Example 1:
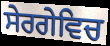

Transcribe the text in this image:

ਸੇਰਗੇਵਿਚ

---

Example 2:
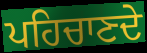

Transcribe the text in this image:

ਪਹਿਚਾਣਦੇ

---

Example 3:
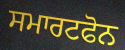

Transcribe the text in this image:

ਸਮਾਰਟਫੋਨ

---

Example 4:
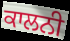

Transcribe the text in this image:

ਕਾਲਨੀ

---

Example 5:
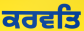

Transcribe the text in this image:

ਕਰਵਤਿ